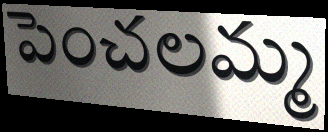
పెంచలమ్మ